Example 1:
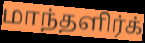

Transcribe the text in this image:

மாந்தளிர்க்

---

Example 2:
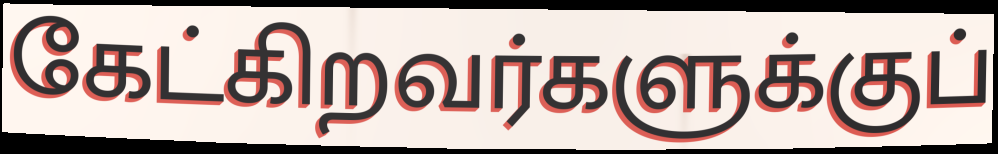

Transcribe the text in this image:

கேட்கிறவர்களுக்குப்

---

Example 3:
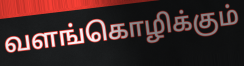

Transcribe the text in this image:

வளங்கொழிக்கும்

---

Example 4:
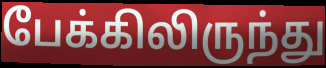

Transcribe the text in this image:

பேக்கிலிருந்து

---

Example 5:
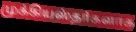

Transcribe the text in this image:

முக்கியஸ்தர்களாக